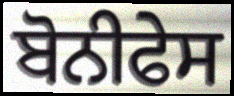
ਬੋਨੀਫੇਸ